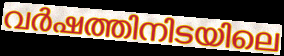
വർഷത്തിനിടയിലെ